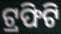
ଟ୍ରଫିଟି